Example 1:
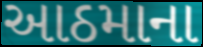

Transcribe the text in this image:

આઠમાના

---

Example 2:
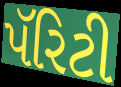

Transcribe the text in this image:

પૅરિટી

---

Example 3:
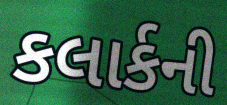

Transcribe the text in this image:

કલાર્કની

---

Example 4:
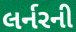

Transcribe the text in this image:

લર્નરની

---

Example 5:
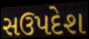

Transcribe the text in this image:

સઉપદેશ